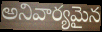
అనివార్యమైన